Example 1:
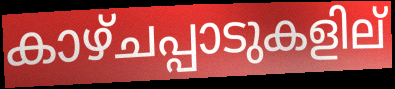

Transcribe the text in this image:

കാഴ്ചപ്പാടുകളില്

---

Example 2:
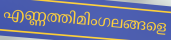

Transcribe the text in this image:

എണ്ണത്തിമിംഗലങ്ങളെ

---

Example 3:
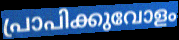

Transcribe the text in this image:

പ്രാപിക്കുവോളം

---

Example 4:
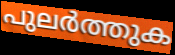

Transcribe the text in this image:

പുലർത്തുക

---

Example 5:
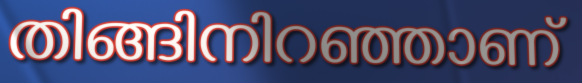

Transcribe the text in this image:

തിങ്ങിനിറഞ്ഞാണ്